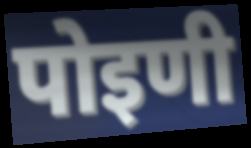
पोइणी